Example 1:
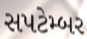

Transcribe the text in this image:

સપટેમ્બર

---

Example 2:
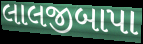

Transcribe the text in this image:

લાલજીબાપા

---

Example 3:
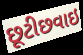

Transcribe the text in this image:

છૂટીછવાઇ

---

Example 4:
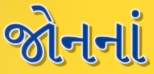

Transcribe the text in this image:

જોનનાં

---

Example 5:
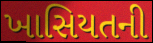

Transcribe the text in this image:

ખાસિયતની